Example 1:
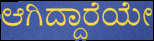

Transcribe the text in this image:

ಆಗಿದ್ದಾರೆಯೇ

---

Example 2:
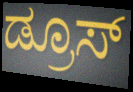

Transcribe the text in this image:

ಡ್ರೂಸ್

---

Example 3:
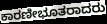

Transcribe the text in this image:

ಕಾರಣೀಭೂತರಾದರು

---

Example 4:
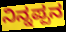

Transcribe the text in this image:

ನಿನ್ನಪ್ಪನ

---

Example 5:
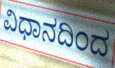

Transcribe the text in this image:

ವಿಧಾನದಿಂದ